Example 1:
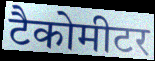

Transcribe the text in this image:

टैकोमीटर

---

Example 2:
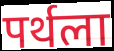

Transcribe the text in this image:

पर्थला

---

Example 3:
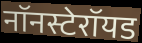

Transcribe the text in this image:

नॉनस्टेरॉयड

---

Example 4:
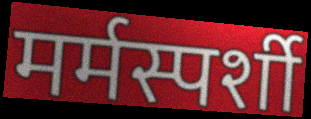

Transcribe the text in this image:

मर्मस्पर्शी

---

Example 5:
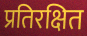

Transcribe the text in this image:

प्रतिरक्षित